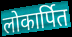
लोकार्पित